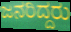
ಜನರಿದ್ದರು